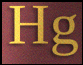
Hg